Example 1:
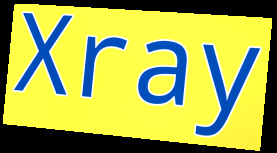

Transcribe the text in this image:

Xray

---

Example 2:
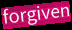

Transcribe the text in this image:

forgiven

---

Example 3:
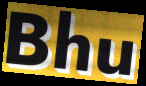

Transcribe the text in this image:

Bhu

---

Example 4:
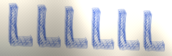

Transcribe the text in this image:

LLLLLL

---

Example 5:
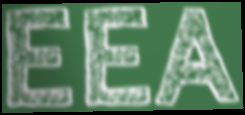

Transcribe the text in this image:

EEA